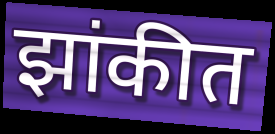
झांकीत